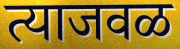
त्याजवळ